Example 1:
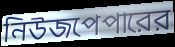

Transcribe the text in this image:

নিউজপেপারের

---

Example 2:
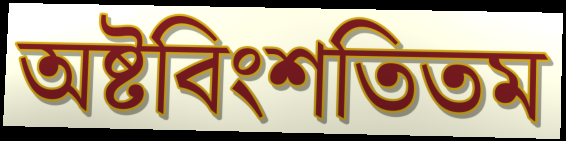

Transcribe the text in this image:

অষ্টবিংশতিতম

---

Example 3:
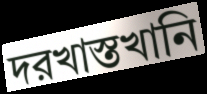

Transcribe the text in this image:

দরখাস্তখানি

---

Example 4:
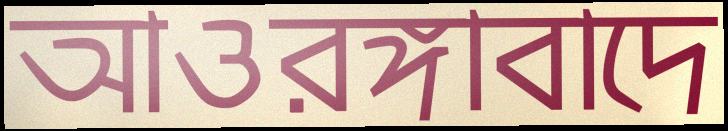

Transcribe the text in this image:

আওরঙ্গাবাদে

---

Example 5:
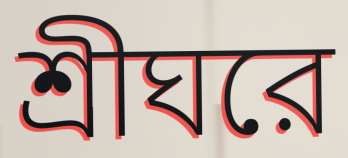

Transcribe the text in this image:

শ্রীঘরে